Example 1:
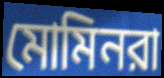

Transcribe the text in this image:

মোমিনরা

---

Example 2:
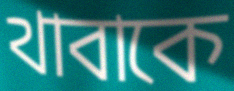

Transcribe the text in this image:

থাবাকে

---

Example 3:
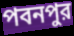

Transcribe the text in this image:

পবনপুর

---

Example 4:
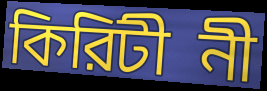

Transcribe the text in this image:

কিরিটীনী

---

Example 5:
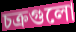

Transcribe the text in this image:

চক্রগুলো